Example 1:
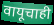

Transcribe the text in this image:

वायूचाही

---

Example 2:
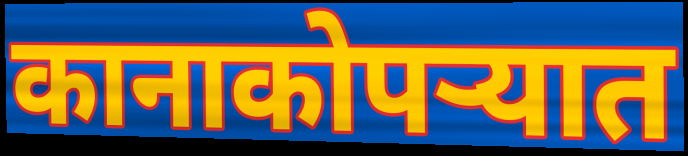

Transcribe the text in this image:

कानाकोपऱ्यात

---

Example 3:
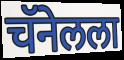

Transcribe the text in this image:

चॅनेलला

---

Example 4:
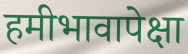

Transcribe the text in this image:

हमीभावापेक्षा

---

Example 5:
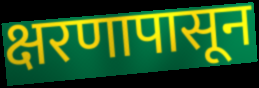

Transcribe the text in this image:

क्षरणापासून